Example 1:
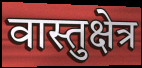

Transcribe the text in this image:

वास्तुक्षेत्र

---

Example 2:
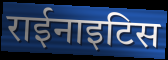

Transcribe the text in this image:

राईनाइटिस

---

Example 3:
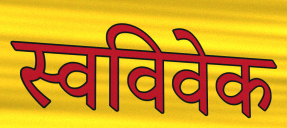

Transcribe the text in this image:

स्वविवेक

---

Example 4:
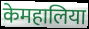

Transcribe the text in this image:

केमहालिया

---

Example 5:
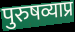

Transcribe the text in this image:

पुरुषव्याप्र